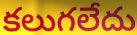
కలుగలేదు